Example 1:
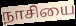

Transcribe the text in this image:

நாசியை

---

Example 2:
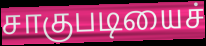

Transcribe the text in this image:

சாகுபடியைச்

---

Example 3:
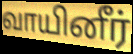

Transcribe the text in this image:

வாயினீர்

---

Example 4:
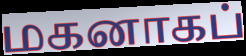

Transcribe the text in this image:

மகனாகப்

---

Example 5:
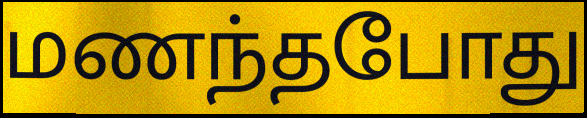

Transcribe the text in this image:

மணந்தபோது